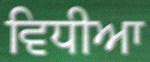
ਵਿਧੀਆ